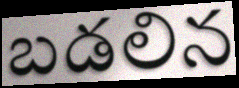
బడలిన